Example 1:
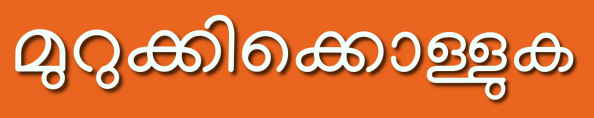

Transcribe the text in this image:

മുറുക്കിക്കൊള്ളുക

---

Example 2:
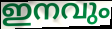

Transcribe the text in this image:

ഇനവും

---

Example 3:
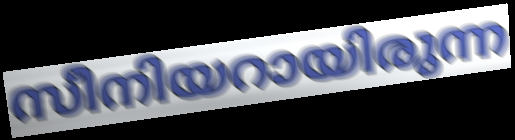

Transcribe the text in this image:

സീനിയറായിരുന്ന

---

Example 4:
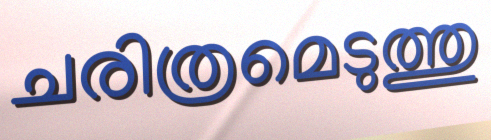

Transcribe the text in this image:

ചരിത്രമെടുത്തു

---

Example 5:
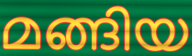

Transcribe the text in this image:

മങ്ങിയ